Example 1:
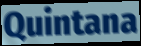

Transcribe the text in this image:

Quintana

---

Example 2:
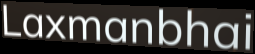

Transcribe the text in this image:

Laxmanbhai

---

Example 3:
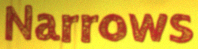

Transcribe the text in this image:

Narrows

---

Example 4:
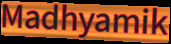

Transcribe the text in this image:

Madhyamik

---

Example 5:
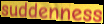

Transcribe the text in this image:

suddenness